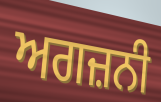
ਅਗਜ਼ਨੀ